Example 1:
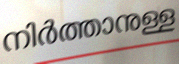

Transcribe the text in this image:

നിർത്താനുള്ള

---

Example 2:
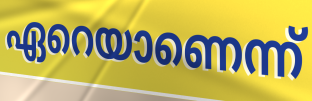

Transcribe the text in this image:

ഏറെയാണെന്ന്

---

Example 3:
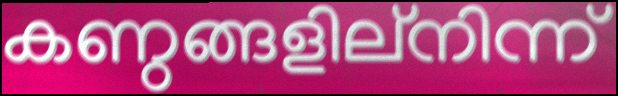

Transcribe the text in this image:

കണ്ഠങ്ങളില്നിന്ന്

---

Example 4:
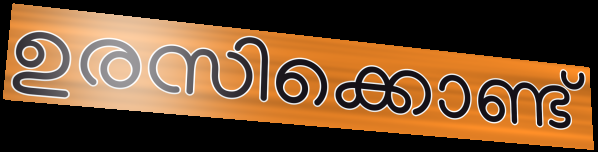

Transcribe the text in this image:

ഉരസിക്കൊണ്ട്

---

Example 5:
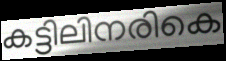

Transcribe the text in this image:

കട്ടിലിനരികെ